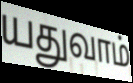
யதுவாம்